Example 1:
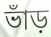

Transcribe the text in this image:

ভাঁড়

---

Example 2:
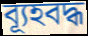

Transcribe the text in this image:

ব্যূহবদ্ধ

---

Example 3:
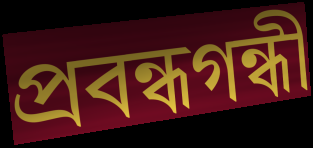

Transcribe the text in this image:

প্রবন্ধগন্ধী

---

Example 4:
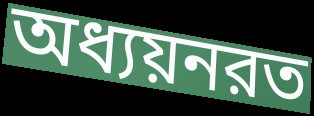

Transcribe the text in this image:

অধ্যয়নরত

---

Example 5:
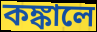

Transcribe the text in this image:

কঙ্কালে